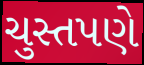
ચુસ્તપણે